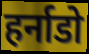
हर्नाडो